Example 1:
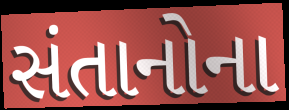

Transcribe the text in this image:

સંતાનોના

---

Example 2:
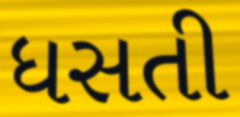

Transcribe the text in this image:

ધસતી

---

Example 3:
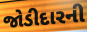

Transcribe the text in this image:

જોડીદારની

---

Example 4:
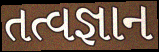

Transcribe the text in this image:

તત્વજ્ઞાન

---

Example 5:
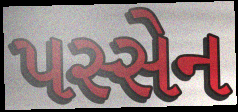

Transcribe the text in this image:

પસ્સેન